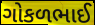
ગોકળભાઈ